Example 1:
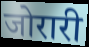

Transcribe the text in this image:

जोरारी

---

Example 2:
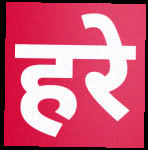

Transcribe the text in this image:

हरे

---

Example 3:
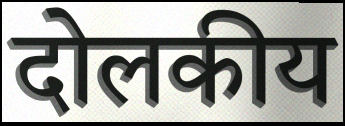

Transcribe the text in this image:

दोलकीय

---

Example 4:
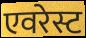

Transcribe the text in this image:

एवरेस्ट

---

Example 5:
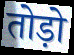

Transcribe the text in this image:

तोड़ो